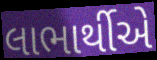
લાભાર્થીએ